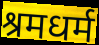
श्रमधर्म